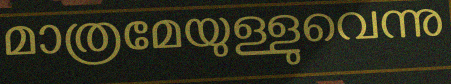
മാത്രമേയുള്ളുവെന്നു